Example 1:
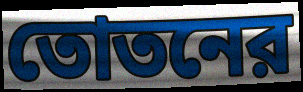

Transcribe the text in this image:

তোতনের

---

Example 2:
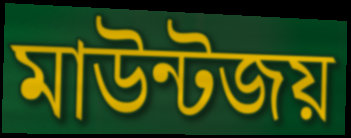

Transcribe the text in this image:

মাউন্টজয়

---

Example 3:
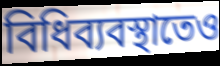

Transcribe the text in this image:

বিধিব্যবস্থাতেও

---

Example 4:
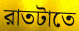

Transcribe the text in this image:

রাতটাতে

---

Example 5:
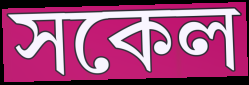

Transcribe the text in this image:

সকেল